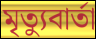
মৃত্যুবার্তা